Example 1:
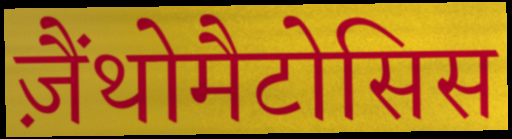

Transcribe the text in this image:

ज़ैंथोमैटोसिस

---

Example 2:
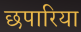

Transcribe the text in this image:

छपारिया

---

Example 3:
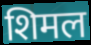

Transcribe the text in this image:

शिमल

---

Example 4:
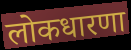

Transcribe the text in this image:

लोकधारणा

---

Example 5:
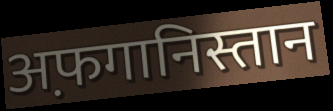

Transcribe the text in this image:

अ़फगानिस्तान